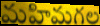
మహిమగల